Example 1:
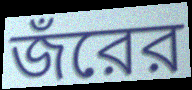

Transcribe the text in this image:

জঁরের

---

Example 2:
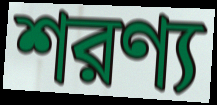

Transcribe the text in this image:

শরণ্য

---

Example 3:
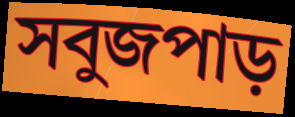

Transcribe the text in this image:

সবুজপাড়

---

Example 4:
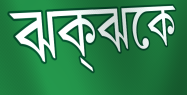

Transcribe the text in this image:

ঝক্ঝকে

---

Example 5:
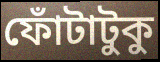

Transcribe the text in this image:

ফোঁটাটুকু